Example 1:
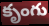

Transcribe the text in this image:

కృంగు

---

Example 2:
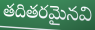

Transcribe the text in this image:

తదితరమైనవి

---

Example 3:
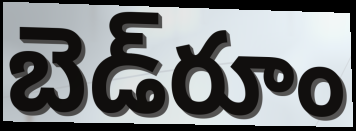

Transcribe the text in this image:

బెడ్‌రూం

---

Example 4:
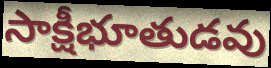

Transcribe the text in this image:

సాక్షీభూతుడవు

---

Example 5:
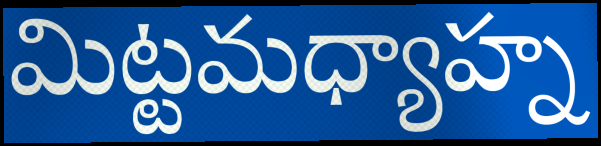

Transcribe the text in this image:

మిట్టమధ్యాహ్న